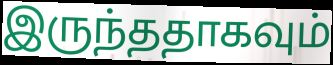
இருந்ததாகவும்